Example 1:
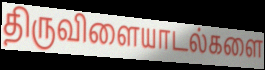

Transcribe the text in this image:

திருவிளையாடல்களை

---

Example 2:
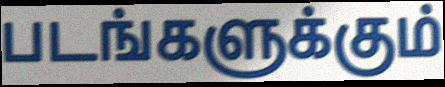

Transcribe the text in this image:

படங்களுக்கும்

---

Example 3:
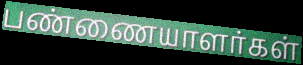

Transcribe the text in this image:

பண்ணையாளர்கள்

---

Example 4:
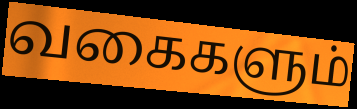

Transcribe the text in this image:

வகைகளும்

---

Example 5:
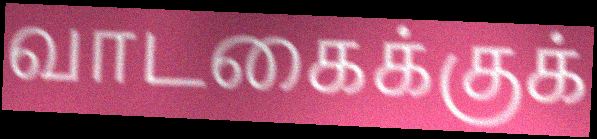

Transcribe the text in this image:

வாடகைக்குக்